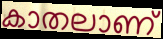
കാതലാണ്